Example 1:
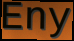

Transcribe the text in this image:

Eny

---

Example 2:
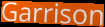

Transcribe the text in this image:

Garrison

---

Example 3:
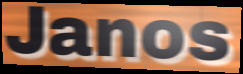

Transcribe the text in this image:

Janos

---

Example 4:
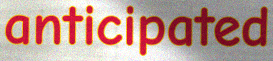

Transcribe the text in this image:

anticipated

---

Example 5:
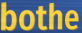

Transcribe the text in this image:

bothe